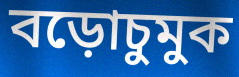
বড়োচুমুক